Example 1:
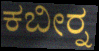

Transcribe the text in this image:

ಕಬೀರ್‍ನ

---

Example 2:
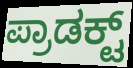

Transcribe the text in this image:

ಪ್ರಾಡಕ್ಟ್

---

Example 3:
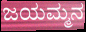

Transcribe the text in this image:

ಜಯಮ್ಮನ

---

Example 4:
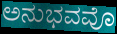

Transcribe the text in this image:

ಅನುಭವವೊ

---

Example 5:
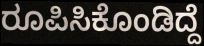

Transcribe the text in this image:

ರೂಪಿಸಿಕೊಂಡಿದ್ದೆ